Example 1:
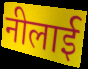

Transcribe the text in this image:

नीलाई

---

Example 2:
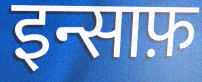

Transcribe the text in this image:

इन्साफ़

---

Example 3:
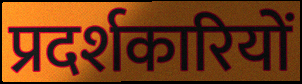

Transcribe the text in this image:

प्रदर्शकारियों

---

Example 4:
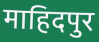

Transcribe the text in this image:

माहिदपुर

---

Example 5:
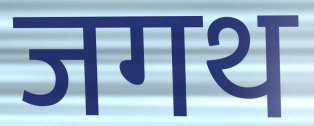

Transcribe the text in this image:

जगथ